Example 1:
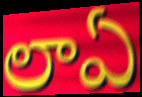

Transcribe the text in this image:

లాఏ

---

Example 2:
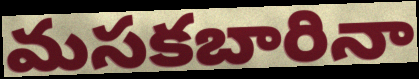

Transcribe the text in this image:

మసకబారినా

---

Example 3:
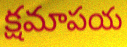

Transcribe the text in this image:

క్షమాపయ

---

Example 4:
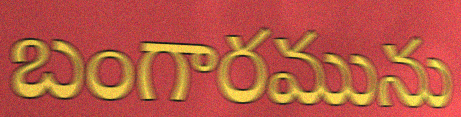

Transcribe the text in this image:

బంగారమును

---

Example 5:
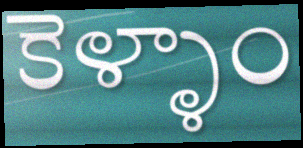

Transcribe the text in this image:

కెళ్ళాం